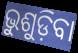
ଭୁଶୁଡ଼ିବା